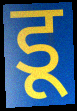
डू